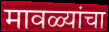
मावळ्यांचा